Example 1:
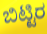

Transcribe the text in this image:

ಬಿಟ್ಟಿರ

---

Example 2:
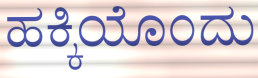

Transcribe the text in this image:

ಹಕ್ಕಿಯೊಂದು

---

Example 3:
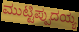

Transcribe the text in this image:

ಮುಟ್ಟಿಪ್ಪುದಯ್ಯ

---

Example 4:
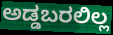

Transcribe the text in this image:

ಅಡ್ಡಬರಲಿಲ್ಲ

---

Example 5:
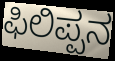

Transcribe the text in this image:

ಫಿಲಿಪ್ಪನ